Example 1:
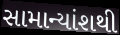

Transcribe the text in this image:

સામાન્યાંશથી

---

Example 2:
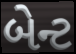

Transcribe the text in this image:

બેન્ટ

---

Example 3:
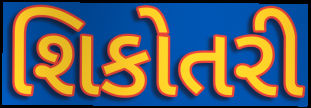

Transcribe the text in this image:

શિકોતરી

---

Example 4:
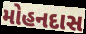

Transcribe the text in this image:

મોહનદાસ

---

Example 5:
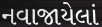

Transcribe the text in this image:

નવાજાયેલાં